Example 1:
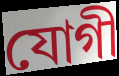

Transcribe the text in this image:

যোগী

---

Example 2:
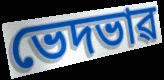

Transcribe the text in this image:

ভেদভাৱ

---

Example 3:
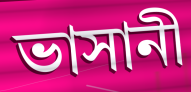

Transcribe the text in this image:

ভাসানী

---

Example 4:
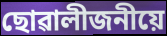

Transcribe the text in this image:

ছোৱালীজনীয়ে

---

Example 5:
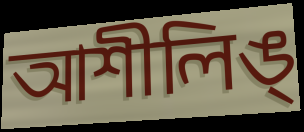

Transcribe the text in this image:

আশীলিঙ্